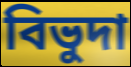
বিভুদা